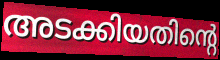
അടക്കിയതിന്റെ